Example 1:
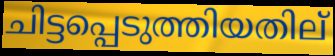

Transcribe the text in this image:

ചിട്ടപ്പെടുത്തിയതില്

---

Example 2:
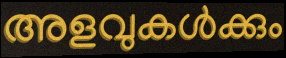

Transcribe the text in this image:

അളവുകൾക്കും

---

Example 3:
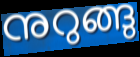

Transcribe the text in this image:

നുറുങ്ങു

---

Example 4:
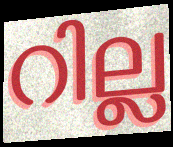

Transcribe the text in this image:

റില്ല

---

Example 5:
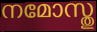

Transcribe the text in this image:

നമോസ്തു